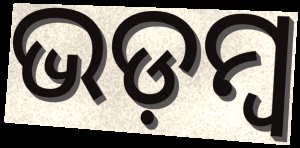
ଭଡ଼ମ୍ବ